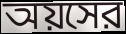
অয়সের